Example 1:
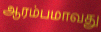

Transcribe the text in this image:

ஆரம்பமாவது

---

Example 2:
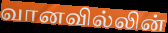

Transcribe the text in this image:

வானவில்லின்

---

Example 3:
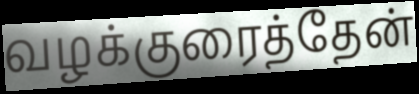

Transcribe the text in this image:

வழக்குரைத்தேன்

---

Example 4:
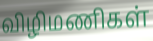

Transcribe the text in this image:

விழிமணிகள்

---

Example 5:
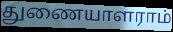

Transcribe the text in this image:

துணையாளராம்